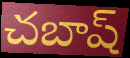
చబాష్